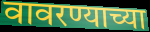
वावरण्याच्या